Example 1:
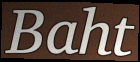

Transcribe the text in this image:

Baht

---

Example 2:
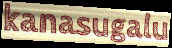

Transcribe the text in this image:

kanasugalu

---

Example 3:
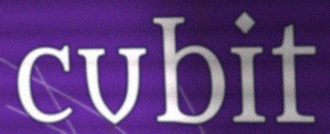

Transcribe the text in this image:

cubit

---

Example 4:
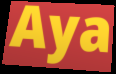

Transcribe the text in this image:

Aya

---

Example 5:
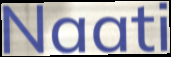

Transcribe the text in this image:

Naati